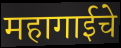
महागाईचे